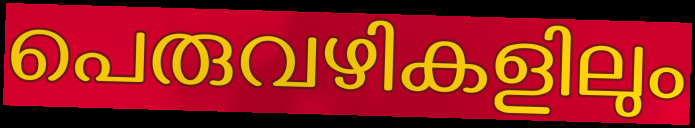
പെരുവഴികളിലും